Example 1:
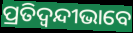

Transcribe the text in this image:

ପ୍ରତିଦ୍ୱନ୍ଦୀଭାବେ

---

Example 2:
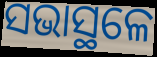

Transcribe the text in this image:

ସଭାସ୍ଥଳେ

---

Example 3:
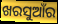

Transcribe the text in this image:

ଖରସୁଆଁର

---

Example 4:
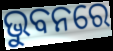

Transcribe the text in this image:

ଭୁବନରେ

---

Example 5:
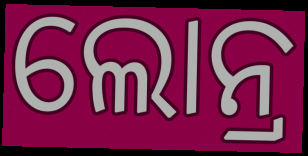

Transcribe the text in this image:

ଲୋନ୍ର